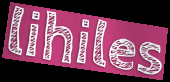
lihiles